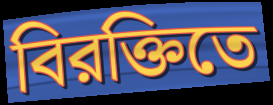
বিরক্তিতে